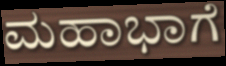
ಮಹಾಭಾಗೆ